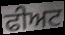
ਫੀਅਟ